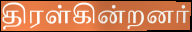
திரள்கின்றனர்